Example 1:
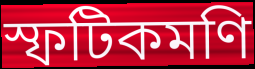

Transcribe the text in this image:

স্ফটিকমণি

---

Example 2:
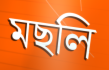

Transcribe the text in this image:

মছলি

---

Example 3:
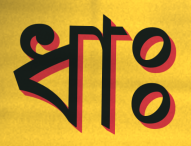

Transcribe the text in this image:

ধাঃ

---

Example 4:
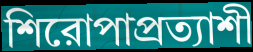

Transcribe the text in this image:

শিরোপাপ্রত্যাশী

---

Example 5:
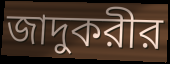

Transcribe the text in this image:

জাদুকরীর